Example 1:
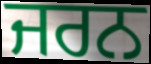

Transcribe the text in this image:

ਜਰਨ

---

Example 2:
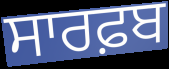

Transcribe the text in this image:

ਸਾਰਫ਼ਬ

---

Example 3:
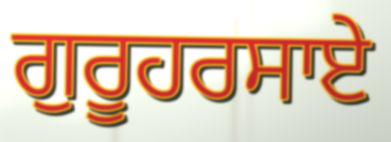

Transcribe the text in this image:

ਗੁਰੂਹਰਸਾਏ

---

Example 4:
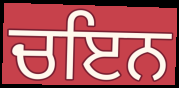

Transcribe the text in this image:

ਚਇਨ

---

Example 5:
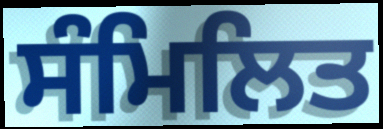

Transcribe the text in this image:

ਸੰਮਿਲਿਤ